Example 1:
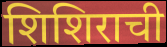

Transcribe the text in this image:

शिशिराची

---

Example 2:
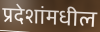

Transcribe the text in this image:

प्रदेशांमधील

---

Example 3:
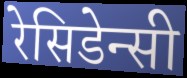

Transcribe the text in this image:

रेसिडेन्सी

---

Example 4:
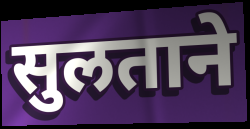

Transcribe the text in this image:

सुलताने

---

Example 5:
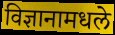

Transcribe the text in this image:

विज्ञानामधले